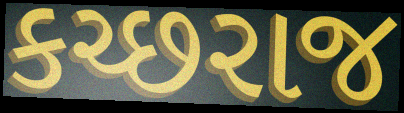
કચ્છરાજ